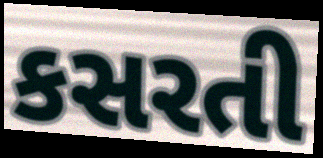
કસરતી